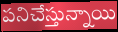
పనిచేస్తున్నాయి